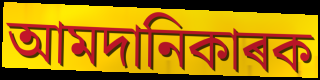
আমদানিকাৰক